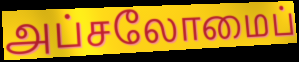
அப்சலோமைப்